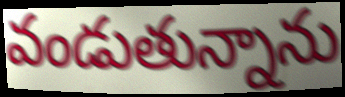
వండుతున్నాను